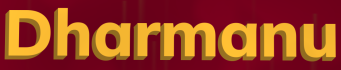
Dharmanu